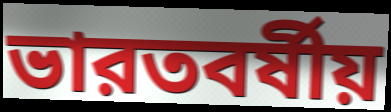
ভারতবর্ষীয়